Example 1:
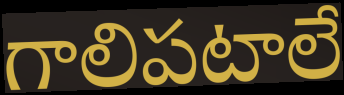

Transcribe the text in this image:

గాలిపటాలే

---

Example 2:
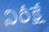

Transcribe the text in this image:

నిరీక్షే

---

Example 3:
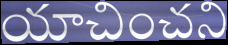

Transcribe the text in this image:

యాచించని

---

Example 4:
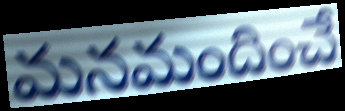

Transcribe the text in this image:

మనమందించే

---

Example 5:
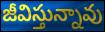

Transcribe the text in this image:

జీవిస్తున్నావు